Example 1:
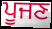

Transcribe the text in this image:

ਪੂਜਣ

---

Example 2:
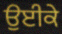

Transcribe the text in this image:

ਉਈਕੇ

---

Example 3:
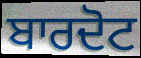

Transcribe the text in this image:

ਬਾਰਦੋਟ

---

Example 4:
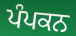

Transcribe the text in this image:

ਪੰਪਕਨ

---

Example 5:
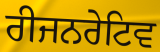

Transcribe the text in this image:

ਰੀਜਨਰੇਟਿਵ